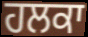
ਹਲਕਾ